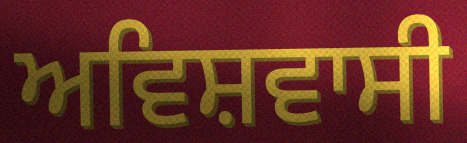
ਅਵਿਸ਼ਵਾਸੀ